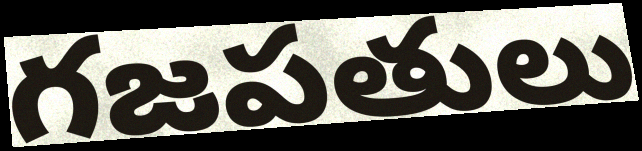
గజపతులు